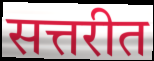
सत्तरीत